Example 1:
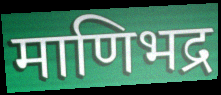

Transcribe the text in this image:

माणिभद्र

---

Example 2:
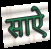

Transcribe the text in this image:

साऐ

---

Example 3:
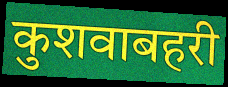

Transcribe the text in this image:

कुशवाबहरी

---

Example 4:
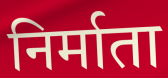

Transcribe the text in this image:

निर्माता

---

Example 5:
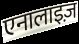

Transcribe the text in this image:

एनालाइज़